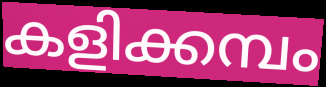
കളിക്കമ്പം